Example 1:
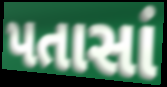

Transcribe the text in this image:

પતાસાં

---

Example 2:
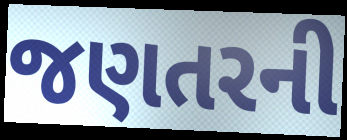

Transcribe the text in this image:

જણતરની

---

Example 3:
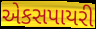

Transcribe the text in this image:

એકસપાયરી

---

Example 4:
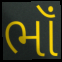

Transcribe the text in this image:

ભૉં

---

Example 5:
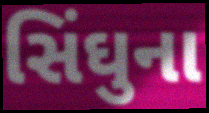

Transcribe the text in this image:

સિંઘુના